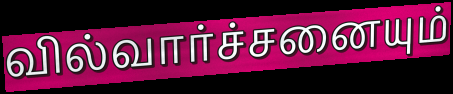
வில்வார்ச்சனையும்